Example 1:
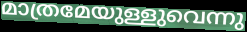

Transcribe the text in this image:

മാത്രമേയുള്ളുവെന്നു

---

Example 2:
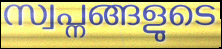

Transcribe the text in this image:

സ്വപ്നങ്ങളുടെ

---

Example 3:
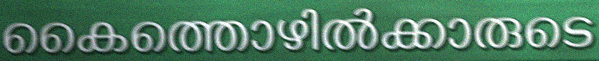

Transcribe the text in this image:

കൈത്തൊഴിൽക്കാരുടെ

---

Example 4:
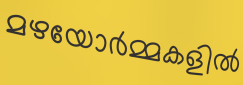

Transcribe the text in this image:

മഴയോർമ്മകളിൽ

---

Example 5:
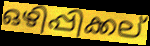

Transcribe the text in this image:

ഒഴിപ്പിക്കല്